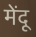
मेंदू